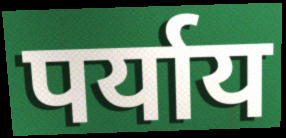
पर्याय